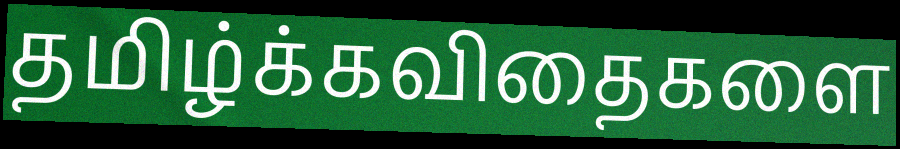
தமிழ்க்கவிதைகளை